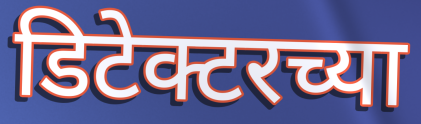
डिटेक्टरच्या